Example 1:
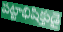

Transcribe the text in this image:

పట్టాభిషిక్తుడై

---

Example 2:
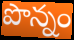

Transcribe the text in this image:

పొన్నం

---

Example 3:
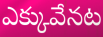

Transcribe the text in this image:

ఎక్కువేనట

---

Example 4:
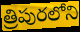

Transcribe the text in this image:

త్రిపురలోని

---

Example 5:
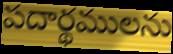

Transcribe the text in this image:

పదార్థములను